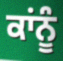
ਕਾਂਨੂੰ